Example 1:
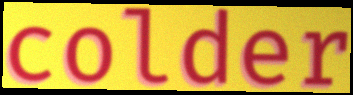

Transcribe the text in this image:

colder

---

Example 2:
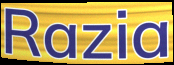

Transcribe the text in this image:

Razia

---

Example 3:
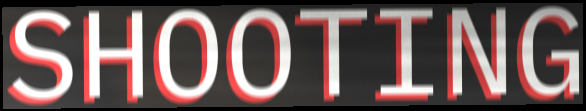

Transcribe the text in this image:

SHOOTING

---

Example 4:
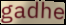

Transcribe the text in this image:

gadhe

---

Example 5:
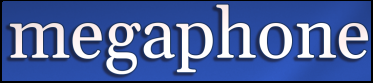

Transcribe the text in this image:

megaphone